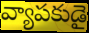
వ్యాపకుడై